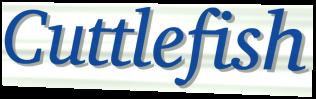
Cuttlefish